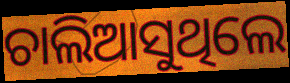
ଚାଲିଆସୁଥିଲେ